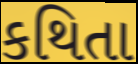
કથિતા